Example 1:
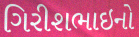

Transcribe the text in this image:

ગિરીશભાઇનો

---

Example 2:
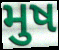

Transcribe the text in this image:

મુષ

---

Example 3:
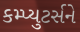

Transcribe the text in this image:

કમ્પ્યુટર્સને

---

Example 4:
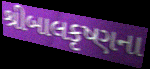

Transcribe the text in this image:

શ્રીબાલકૃષ્ણના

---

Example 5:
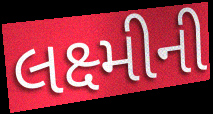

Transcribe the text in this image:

લક્ષ્મીની